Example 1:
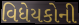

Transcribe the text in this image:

વિધેયકોની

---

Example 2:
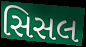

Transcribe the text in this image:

સિસલ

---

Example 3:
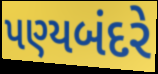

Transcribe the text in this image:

પણ્યબંદરે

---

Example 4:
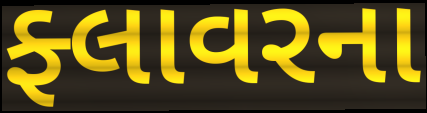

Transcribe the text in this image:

ફ્લાવરના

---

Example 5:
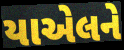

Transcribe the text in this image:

યાએલને